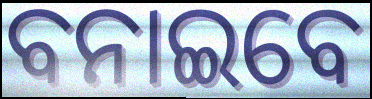
ବନାଇବେ